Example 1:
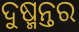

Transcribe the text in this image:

ଦୁଷ୍ମନ୍ତର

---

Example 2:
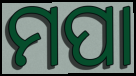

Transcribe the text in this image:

ମପା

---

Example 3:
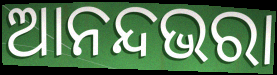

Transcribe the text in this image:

ଆନନ୍ଦଭରା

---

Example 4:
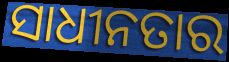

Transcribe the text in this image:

ସାଧୀନତାର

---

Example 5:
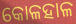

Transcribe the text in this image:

କୋଳହାଳ